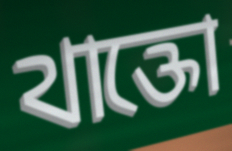
থাক্তো